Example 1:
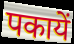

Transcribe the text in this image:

पकायें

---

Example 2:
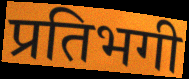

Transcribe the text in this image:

प्रतिभगी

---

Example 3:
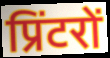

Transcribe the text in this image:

प्रिंटरों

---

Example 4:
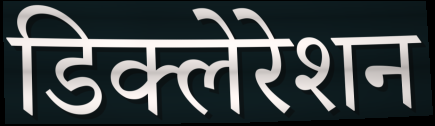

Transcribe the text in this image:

डिक्लेरेशन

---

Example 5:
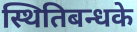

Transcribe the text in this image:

स्थितिबन्धके